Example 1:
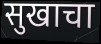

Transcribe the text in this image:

सुखाचा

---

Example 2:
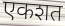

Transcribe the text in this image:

एकशत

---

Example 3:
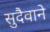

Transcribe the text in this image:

सुदैवाने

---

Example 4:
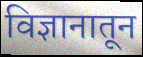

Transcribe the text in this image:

विज्ञानातून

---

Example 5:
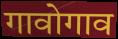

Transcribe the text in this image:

गावोगाव